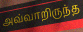
அவ்வாறிருந்த